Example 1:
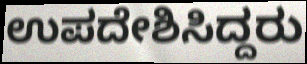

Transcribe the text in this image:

ಉಪದೇಶಿಸಿದ್ದರು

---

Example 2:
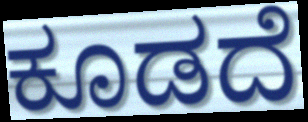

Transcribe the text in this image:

ಕೂಡದೆ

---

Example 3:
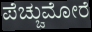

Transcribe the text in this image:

ಪೆಚ್ಚುಮೋರೆ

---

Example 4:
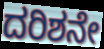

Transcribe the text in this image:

ದರಿಶನೇ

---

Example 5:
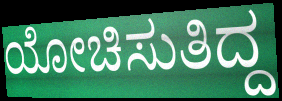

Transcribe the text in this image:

ಯೋಚಿಸುತಿದ್ದ